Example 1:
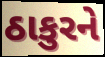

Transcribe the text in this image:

ઠાકુરને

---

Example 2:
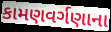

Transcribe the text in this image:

કામણવર્ગણાના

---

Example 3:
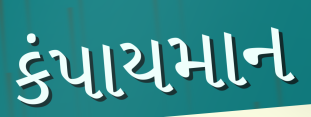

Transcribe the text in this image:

કંપાયમાન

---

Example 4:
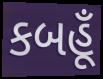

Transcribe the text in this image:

કબહૂઁ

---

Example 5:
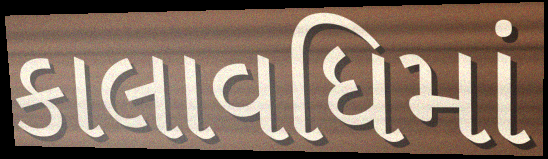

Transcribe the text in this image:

કાલાવધિમાં